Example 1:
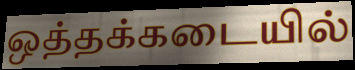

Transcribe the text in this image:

ஒத்தக்கடையில்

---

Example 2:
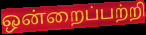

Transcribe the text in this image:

ஒன்றைப்பற்றி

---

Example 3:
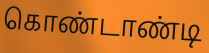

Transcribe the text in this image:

கொண்டாண்டி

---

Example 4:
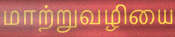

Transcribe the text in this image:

மாற்றுவழியை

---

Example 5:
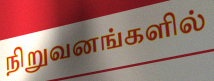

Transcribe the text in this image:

நிறுவனங்களில்